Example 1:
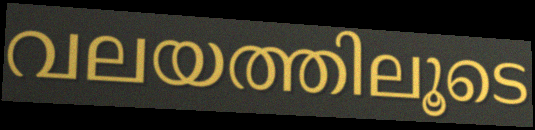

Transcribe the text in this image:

വലയത്തിലൂടെ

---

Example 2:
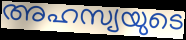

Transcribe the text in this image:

അഹസ്യയുടെ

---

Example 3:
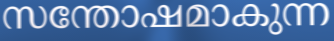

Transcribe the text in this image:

സന്തോഷമാകുന്ന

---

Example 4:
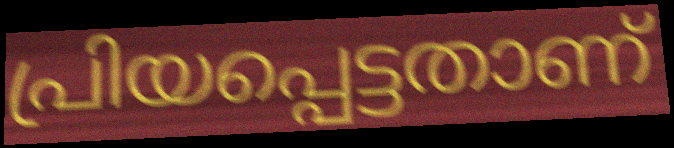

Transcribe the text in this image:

പ്രിയപ്പെട്ടതാണ്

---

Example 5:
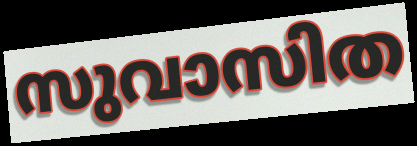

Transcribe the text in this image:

സുവാസിത